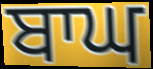
ਬਾਘ